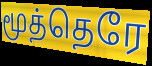
மூத்தெரே